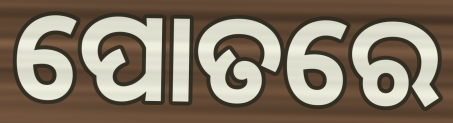
ପୋତରେ